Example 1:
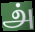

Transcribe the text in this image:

அ்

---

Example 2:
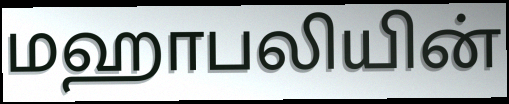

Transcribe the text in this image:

மஹாபலியின்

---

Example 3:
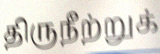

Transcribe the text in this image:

திருநீற்றுக்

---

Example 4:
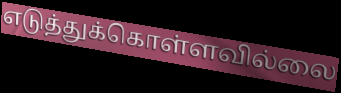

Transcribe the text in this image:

எடுத்துக்கொள்ளவில்லை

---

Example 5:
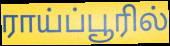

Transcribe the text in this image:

ராய்ப்பூரில்